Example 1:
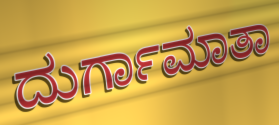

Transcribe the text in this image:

ದುರ್ಗಾಮಾತಾ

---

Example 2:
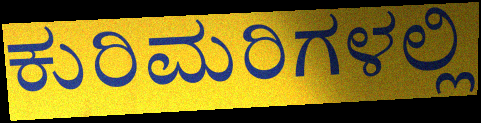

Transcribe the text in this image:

ಕುರಿಮರಿಗಳಲ್ಲಿ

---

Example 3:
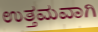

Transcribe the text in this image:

ಉತ್ತಮವಾಗಿ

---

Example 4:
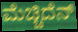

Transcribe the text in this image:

ಮೆಚ್ಚಿದೆನ್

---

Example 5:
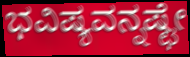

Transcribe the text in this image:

ಭವಿಷ್ಯವನ್ನಷ್ಟೇ